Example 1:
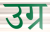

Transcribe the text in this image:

उग्र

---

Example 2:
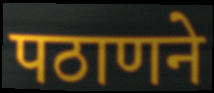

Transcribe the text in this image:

पठाणने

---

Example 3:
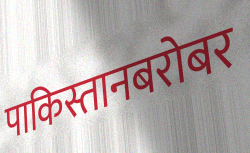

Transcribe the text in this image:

पाकिस्तानबरोबर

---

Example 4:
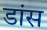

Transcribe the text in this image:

डांस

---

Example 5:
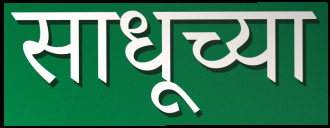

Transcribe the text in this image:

साधूच्या